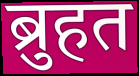
ब्रुहत